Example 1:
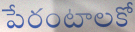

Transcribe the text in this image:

పేరంటాలకో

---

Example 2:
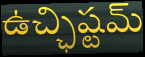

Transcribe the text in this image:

ఉచ్ఛిష్టమ్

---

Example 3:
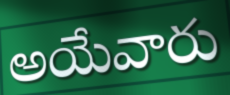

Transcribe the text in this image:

అయేవారు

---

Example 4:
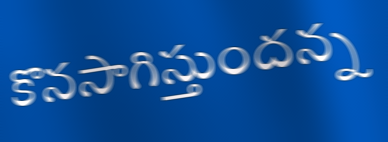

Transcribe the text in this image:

కొనసాగిస్తుందన్న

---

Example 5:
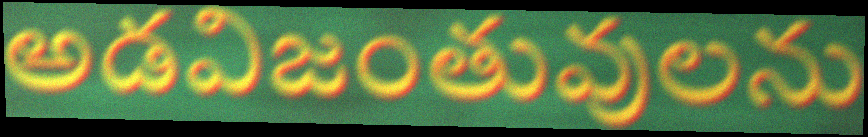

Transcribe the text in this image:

అడవిజంతువులను